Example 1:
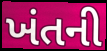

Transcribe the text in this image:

ખંતની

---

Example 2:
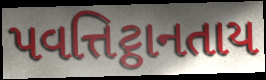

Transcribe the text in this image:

પવત્તિટ્ઠાનતાય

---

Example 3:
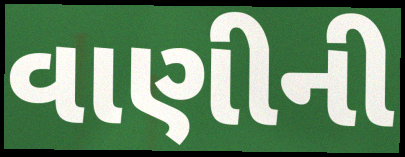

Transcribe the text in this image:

વાણીની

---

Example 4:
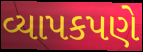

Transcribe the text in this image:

વ્યાપકપણે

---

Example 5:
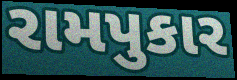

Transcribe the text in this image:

રામપુકાર